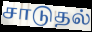
சாடுதல்